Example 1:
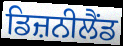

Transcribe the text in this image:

ਡਿਜ਼ਨੀਲੈਂਡ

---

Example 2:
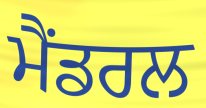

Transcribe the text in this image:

ਮੈਂਡਰਲ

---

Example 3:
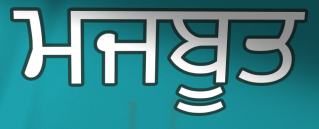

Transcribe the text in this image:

ਮਜਬੂਤ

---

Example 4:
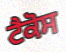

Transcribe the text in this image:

ਟੈਕੋਸ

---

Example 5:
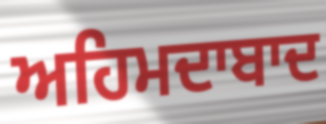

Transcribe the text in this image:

ਅਹਿਮਦਾਬਾਦ